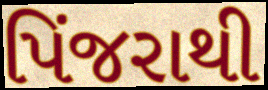
પિંજરાથી